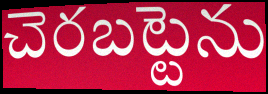
చెరబట్టెను